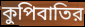
কুপিবাতির